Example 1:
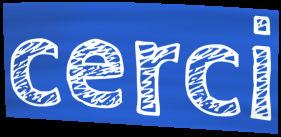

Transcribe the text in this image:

cerci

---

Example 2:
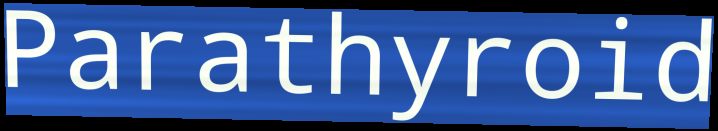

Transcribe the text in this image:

Parathyroid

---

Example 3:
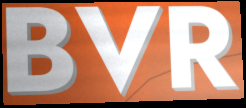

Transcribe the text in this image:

BVR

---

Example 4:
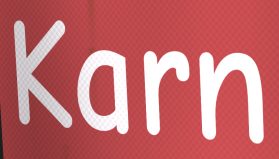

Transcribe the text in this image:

Karn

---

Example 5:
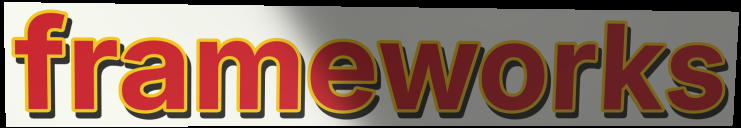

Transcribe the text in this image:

frameworks